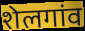
शेलगांव